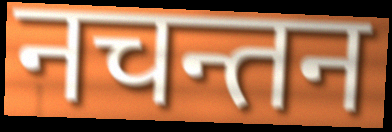
नचन्तन